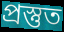
প্ৰস্তুত